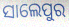
ସାଲେପୁର